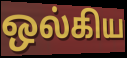
ஒல்கிய